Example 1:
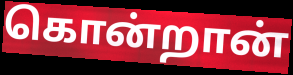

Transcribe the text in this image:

கொன்றான்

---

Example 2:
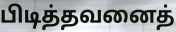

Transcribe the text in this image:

பிடித்தவனைத்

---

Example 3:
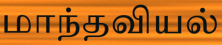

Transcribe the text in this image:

மாந்தவியல்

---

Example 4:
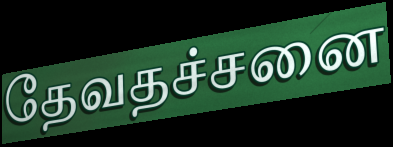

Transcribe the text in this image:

தேவதச்சனை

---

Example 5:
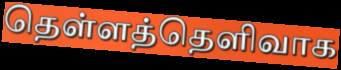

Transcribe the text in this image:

தெள்ளத்தெளிவாக